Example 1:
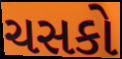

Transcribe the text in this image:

ચસકો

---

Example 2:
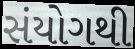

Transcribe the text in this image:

સંયોગથી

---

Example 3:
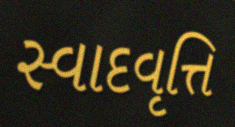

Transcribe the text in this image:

સ્વાદવૃત્તિ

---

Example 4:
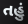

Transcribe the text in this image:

તહું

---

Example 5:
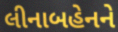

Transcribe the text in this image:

લીનાબહેનને